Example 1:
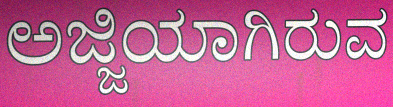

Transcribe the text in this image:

ಅಜ್ಜಿಯಾಗಿರುವ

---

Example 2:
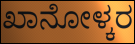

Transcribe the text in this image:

ಖಾನೋಳ್ಕರ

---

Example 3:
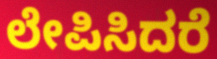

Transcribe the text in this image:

ಲೇಪಿಸಿದರೆ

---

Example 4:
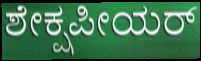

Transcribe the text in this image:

ಶೇಕ್ಷಪೀಯರ್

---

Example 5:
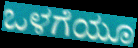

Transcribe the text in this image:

ಒಳಗೆಯೂ